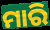
ମାରି